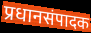
प्रधानसंपादक